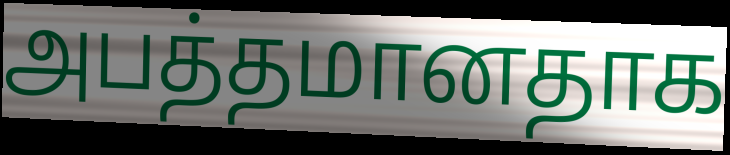
அபத்தமானதாக